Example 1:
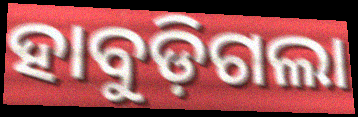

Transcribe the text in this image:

ହାବୁଡ଼ିଗଲା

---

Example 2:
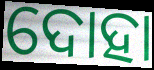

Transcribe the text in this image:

ଦୋହା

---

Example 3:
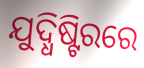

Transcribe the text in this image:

ଯୁଦ୍ଧିଷ୍ଟିରରେ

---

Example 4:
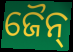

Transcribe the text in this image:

ଜୈନ୍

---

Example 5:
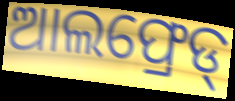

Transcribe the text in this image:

ଆଲଫ୍ରେଡ୍